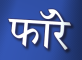
फॉरे